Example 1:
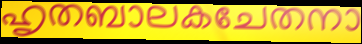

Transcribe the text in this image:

ഹൃതബാലകചേതനാ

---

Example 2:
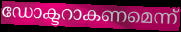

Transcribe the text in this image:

ഡോക്ടറാകണമെന്ന്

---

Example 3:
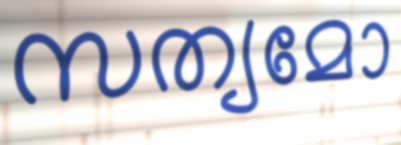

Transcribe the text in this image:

സത്യമോ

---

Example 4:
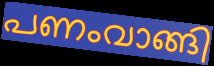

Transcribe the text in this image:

പണംവാങ്ങി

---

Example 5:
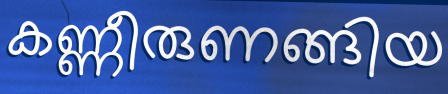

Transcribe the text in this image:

കണ്ണീരുണങ്ങിയ